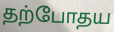
தற்போதய